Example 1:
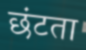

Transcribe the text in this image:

छंटता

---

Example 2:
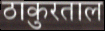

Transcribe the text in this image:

ठाकुरताल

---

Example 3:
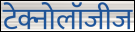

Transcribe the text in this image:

टेक्नोलॉजीज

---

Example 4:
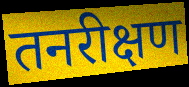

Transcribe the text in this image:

तनरीक्षण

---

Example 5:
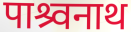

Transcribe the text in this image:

पाश्र्वनाथ